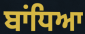
ਬਾਂਧਿਆ